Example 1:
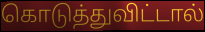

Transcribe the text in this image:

கொடுத்துவிட்டால்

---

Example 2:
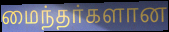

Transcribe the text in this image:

மைந்தர்களான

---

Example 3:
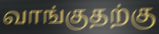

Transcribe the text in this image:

வாங்குதற்கு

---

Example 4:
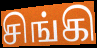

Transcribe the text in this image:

சிங்கி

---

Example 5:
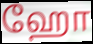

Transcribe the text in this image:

ஹோ